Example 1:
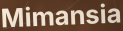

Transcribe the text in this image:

Mimansia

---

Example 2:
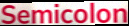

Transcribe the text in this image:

Semicolon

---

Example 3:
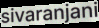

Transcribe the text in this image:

sivaranjani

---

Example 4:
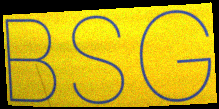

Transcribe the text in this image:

BSG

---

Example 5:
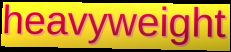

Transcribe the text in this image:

heavyweight